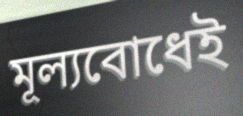
মূল্যবোধেই